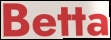
Betta